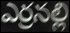
ఎర్రనల్లి